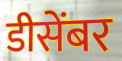
डीसेंबर